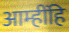
आम्हींहि